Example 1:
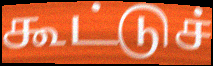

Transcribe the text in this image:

கூட்டுச்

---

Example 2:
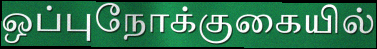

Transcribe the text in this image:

ஒப்புநோக்குகையில்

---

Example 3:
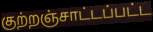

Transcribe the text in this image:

குற்றஞ்சாட்டப்பட்ட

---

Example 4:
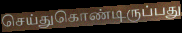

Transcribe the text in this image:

செய்துகொண்டிருப்பது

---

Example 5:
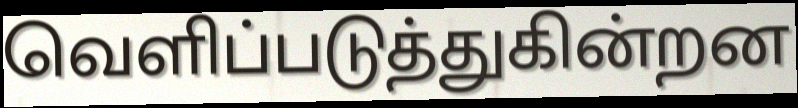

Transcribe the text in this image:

வெளிப்படுத்துகின்றன